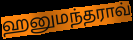
ஹனுமந்தராவ்